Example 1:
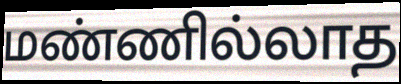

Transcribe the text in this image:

மண்ணில்லாத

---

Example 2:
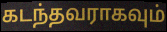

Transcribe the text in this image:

கடந்தவராகவும்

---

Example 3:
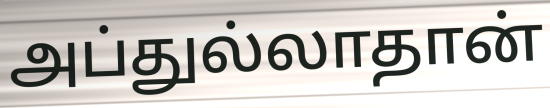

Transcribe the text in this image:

அப்துல்லாதான்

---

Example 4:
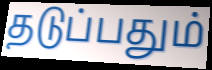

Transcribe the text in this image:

தடுப்பதும்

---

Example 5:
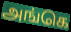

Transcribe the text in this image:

அங்கெ